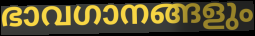
ഭാവഗാനങ്ങളും